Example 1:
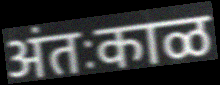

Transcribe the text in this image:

अंतःकाळ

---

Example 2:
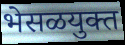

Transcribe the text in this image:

भेसळयुक्त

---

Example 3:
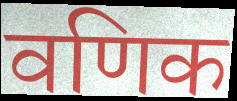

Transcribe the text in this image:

वणिक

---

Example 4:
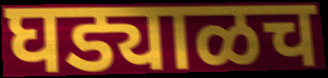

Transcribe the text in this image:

घड्याळच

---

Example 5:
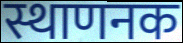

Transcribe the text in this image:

स्थाणनक